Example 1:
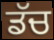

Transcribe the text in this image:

ਡੱਚ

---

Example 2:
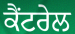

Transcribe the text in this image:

ਕੈਂਟਰੇਲ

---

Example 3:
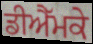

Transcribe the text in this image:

ਡੀਐੱਮਕੇ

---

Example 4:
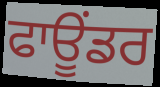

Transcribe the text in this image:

ਫਾਊਂਡਰ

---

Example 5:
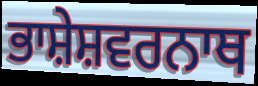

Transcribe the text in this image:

ਭਾਸ਼ੇਸ਼ਵਰਨਾਥ